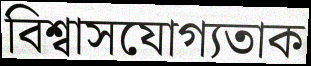
বিশ্বাসযোগ্যতাক